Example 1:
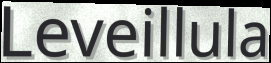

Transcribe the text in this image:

Leveillula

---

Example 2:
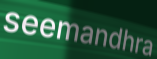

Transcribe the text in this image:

seemandhra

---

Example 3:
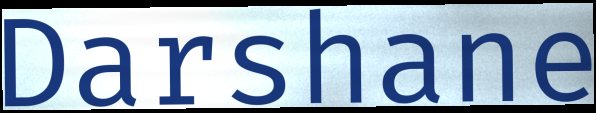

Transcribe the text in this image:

Darshane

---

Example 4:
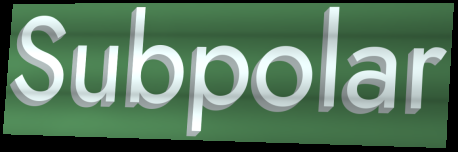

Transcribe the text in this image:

Subpolar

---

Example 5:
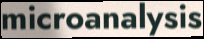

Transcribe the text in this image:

microanalysis